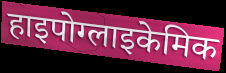
हाइपोग्लाइकेमिक